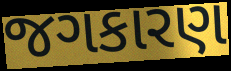
જગકારણ